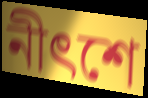
নীৎশে